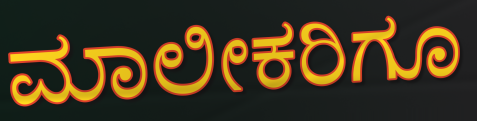
ಮಾಲೀಕರಿಗೂ